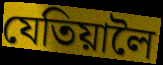
যেতিয়ালৈ